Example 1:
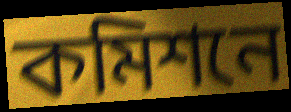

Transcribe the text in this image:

কমিশনে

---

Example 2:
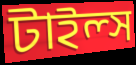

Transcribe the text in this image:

টাইল্স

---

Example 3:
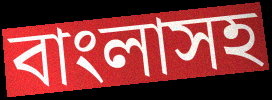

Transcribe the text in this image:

বাংলাসহ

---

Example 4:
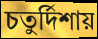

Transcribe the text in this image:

চতুর্দিশায়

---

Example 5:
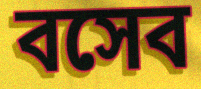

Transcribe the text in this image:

বসেব